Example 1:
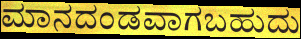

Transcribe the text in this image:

ಮಾನದಂಡವಾಗಬಹುದು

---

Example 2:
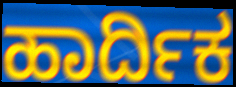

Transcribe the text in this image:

ಹಾರ್ದಿಕ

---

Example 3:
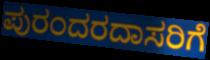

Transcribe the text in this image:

ಪುರಂದರದಾಸರಿಗೆ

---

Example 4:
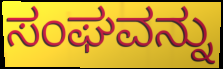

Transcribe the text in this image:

ಸಂಘವನ್ನು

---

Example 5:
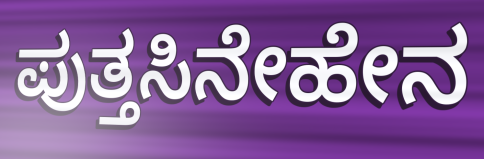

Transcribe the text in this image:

ಪುತ್ತಸಿನೇಹೇನ